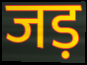
जड़